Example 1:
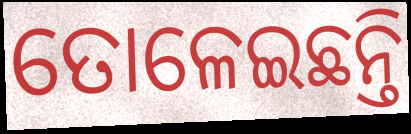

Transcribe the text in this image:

ତୋଳେଇଛନ୍ତି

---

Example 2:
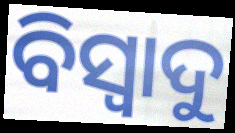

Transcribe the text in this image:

ବିସ୍ୱାଦୁ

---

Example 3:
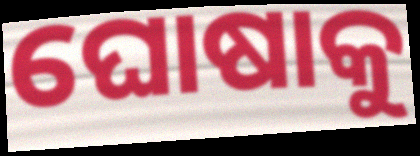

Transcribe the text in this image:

ଘୋଷାକୁ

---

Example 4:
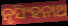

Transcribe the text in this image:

ନୃସିଂହନାଥ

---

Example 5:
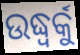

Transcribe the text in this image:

ଉଦ୍ଧ୍ୱର୍କୁ